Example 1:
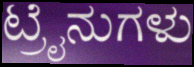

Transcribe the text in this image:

ಟ್ರೈನುಗಳು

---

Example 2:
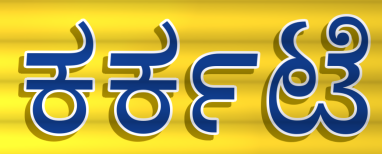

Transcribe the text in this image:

ಕರ್ಕಟೆ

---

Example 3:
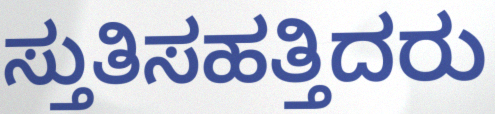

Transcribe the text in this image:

ಸ್ತುತಿಸಹತ್ತಿದರು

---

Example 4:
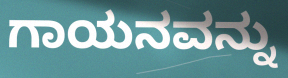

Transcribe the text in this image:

ಗಾಯನವನ್ನು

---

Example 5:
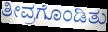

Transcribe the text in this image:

ತೀವ್ರಗೊಂಡಿತು